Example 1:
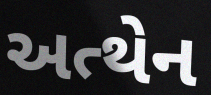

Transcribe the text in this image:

અત્થેન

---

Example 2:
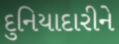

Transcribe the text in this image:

દુનિયાદારીને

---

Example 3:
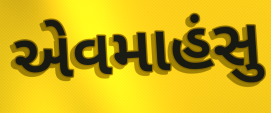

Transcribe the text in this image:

એવમાહંસુ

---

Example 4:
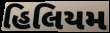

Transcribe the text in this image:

હિલિયમ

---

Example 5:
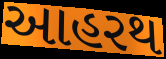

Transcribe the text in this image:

આહરથ